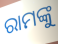
ରାମଙ୍କୁ